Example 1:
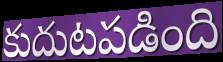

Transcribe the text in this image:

కుదుటపడింది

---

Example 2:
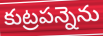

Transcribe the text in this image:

కుట్రపన్నెను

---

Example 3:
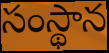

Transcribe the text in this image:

సంస్థాన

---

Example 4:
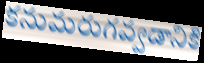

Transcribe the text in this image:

కనుమరుగవ్వడానికి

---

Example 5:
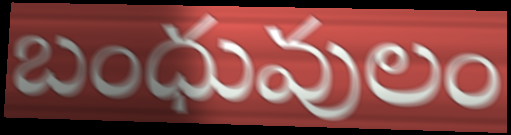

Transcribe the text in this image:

బంధువులం